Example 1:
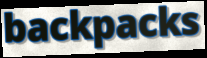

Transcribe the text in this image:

backpacks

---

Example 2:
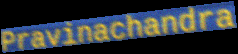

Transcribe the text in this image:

Pravinachandra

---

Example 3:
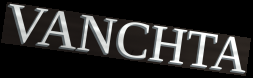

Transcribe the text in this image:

VANCHTA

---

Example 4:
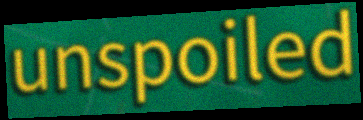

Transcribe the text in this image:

unspoiled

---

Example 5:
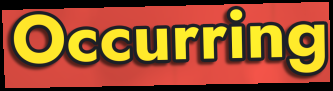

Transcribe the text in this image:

Occurring